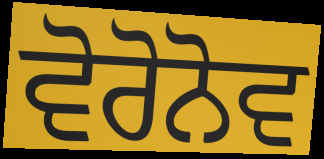
ਵੋਰੋਨੋਵ